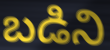
బడిని